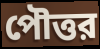
পৌত্তর